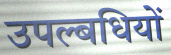
उपल्बधियों